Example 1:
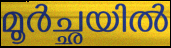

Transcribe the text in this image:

മൂർച്ഛയിൽ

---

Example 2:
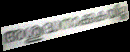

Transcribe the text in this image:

അശുദ്ധനാക്കുകയില്ല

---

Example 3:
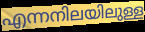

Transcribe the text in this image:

എന്നനിലയിലുള്ള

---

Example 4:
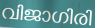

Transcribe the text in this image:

വിജാഗിരി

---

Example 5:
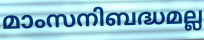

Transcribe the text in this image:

മാംസനിബദ്ധമല്ല